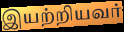
இயற்றியவர்